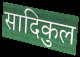
सादिकुल